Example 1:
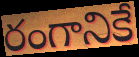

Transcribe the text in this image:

రంగానికే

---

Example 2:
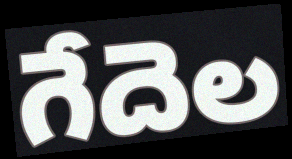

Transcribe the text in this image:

గేదెల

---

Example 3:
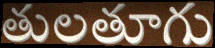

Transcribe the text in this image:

తులతూగు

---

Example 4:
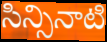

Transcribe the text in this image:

సిన్సినాటి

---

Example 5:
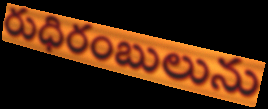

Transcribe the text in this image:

రుధిరంబులును